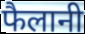
फैलानी